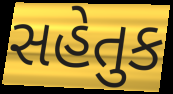
સહેતુક